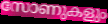
സോണുകളും